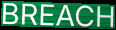
BREACH